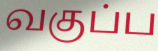
வகுப்ப